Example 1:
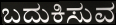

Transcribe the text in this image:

ಬದುಕಿಸುವ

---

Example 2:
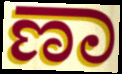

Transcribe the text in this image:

ಣಾ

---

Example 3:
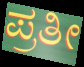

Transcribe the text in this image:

ಪ್ರತೀ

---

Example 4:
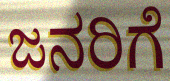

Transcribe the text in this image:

ಜನರಿಗೆ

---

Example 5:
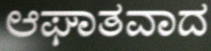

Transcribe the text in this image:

ಆಘಾತವಾದ